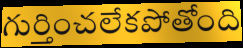
గుర్తించలేకపోతోంది